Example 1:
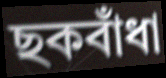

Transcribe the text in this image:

ছকবাঁধা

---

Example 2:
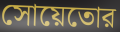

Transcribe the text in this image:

সোয়েতোর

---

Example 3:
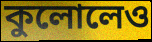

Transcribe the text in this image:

কুলোলেও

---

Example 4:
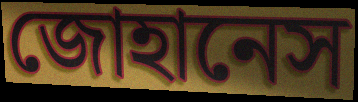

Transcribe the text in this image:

জোহানেস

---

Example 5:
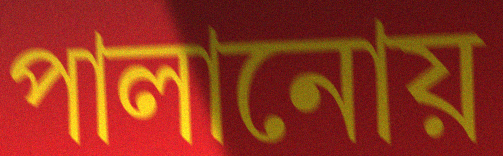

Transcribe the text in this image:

পালানোয়